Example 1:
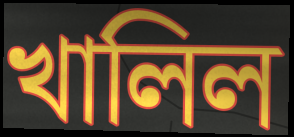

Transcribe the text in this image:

খালিল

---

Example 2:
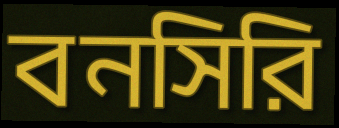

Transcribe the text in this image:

বনসিরি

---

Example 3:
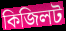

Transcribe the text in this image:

কিজিলট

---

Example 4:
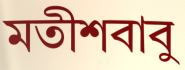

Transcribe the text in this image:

মতীশবাবু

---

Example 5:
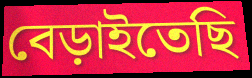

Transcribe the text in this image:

বেড়াইতেছি